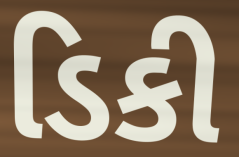
ડિકી